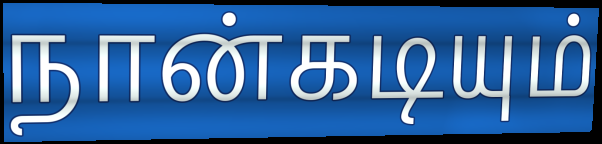
நான்கடியும்